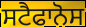
ਸਟੈਫਾਨੋਸ